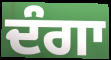
ਦੰਗਾ